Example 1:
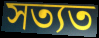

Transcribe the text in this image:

সত্যত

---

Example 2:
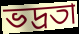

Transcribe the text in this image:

ভদ্ৰতা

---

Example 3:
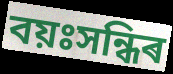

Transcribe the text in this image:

বয়ঃসন্ধিৰ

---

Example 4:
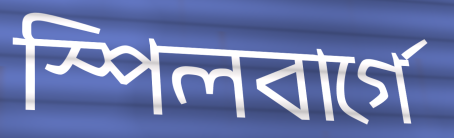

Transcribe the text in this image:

স্পিলবাৰ্গে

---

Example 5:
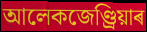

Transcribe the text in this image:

আলেকজেণ্ড্ৰিয়াৰ